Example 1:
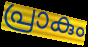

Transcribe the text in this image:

പ്രാകും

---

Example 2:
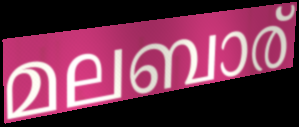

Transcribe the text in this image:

മലബാര്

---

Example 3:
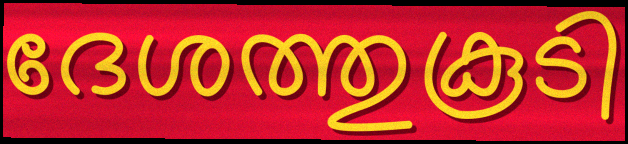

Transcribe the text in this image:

ദേശത്തുകൂടി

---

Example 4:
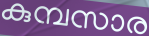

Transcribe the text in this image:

കുമ്പസാര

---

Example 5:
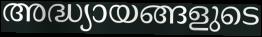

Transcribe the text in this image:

അദ്ധ്യായങ്ങളുടെ